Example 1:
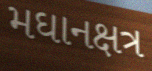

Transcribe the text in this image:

મઘાનક્ષત્ર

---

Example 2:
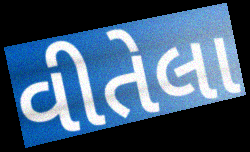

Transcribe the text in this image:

વીતેલા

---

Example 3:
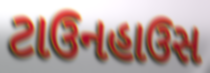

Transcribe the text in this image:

ટાઉનહાઉસ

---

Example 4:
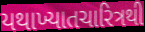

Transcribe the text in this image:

યથાખ્યાતચારિત્રથી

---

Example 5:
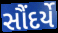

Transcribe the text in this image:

સૌંદર્યે